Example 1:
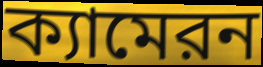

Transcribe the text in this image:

ক্যামেরন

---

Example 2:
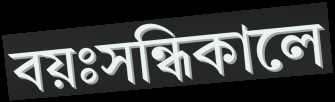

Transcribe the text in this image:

বয়ঃসন্ধিকালে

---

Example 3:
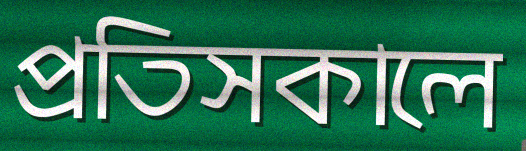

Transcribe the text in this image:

প্রতিসকালে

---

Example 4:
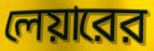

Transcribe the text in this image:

লেয়ারের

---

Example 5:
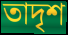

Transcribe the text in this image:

তাদৃশ